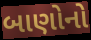
બાણોનો